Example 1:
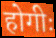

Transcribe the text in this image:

होगीः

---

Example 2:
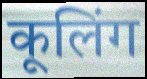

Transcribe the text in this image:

कूलिंग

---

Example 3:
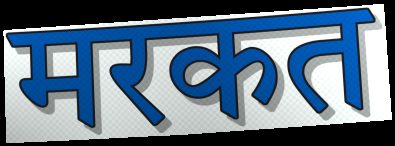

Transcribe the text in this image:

मरकत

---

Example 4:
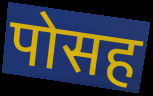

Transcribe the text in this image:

पोसह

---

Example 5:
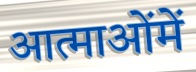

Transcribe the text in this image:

आत्माओंमें